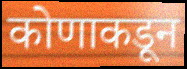
कोणाकडून